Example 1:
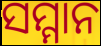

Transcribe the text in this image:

ସମ୍ମାନ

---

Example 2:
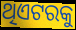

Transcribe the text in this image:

ଥିଏଟରକୁ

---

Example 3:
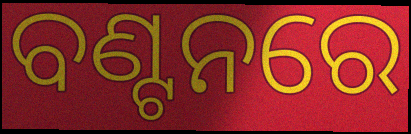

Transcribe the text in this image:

ବଣ୍ଟନରେ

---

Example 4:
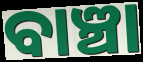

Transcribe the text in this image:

ବାଞ୍ଚା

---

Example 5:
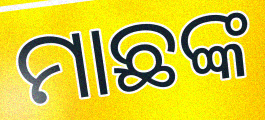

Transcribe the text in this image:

ମାଛଙ୍କ